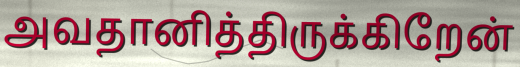
அவதானித்திருக்கிறேன்